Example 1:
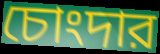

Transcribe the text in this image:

চোংদার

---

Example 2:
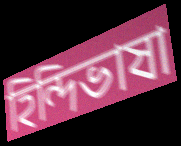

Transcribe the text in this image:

হিন্দিভাষা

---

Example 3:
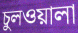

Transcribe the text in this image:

চুলওয়ালা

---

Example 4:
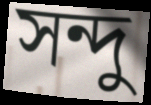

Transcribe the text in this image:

সন্দু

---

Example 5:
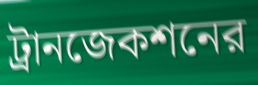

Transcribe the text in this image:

ট্রানজেকশনের